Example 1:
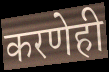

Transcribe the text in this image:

करणेही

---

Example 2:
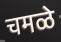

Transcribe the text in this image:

चमळे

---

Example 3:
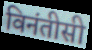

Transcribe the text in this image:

विनंतीसी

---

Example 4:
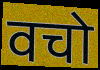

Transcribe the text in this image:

वचो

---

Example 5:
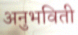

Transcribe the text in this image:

अनुभविती